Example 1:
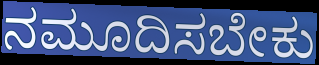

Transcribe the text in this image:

ನಮೂದಿಸಬೇಕು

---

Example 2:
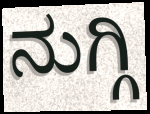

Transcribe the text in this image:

ನುಗ್ಗಿ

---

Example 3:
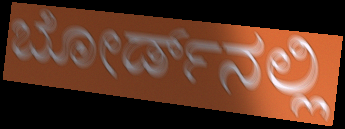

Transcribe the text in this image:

ಬೋರ್ಡ್‌ನಲ್ಲಿ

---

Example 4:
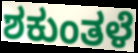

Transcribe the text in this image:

ಶಕುಂತಳೆ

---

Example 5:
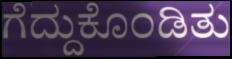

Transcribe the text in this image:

ಗೆದ್ದುಕೊಂಡಿತು